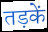
तड़कें